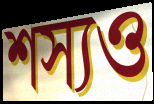
শস্যও